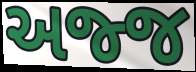
અજ્જ